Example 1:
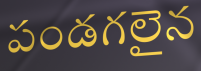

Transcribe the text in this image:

పండగలైన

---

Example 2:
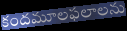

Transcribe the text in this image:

కందమూలఫలాలను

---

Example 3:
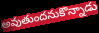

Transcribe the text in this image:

అవుతుందనుకొన్నాడు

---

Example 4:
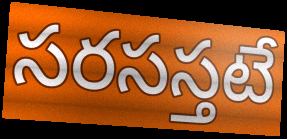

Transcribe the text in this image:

సరసస్తటే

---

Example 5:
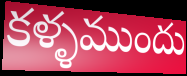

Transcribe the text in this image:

కళ్ళముందు